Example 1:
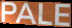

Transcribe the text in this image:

PALE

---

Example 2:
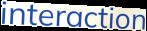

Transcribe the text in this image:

interaction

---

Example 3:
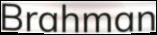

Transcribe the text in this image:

Brahman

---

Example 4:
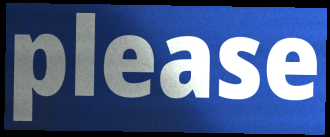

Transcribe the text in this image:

please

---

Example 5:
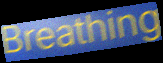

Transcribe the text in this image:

Breathing